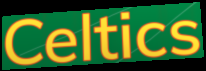
Celtics